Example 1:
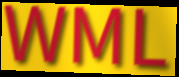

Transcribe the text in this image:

WML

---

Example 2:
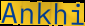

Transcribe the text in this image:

Ankhi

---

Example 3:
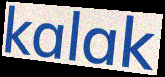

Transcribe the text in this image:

kalak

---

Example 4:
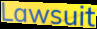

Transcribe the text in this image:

Lawsuit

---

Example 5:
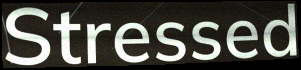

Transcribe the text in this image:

Stressed